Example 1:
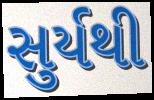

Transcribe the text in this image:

સુર્યથી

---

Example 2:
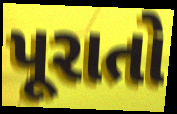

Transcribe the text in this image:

પૂરાતો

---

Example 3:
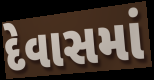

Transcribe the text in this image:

દેવાસમાં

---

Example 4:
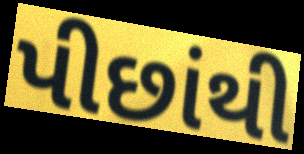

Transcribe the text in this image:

પીછાંથી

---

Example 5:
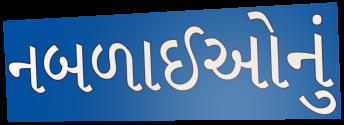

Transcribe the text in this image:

નબળાઈઓનું